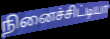
நினைச்சிட்டியா